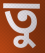
তু